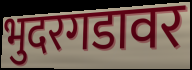
भुदरगडावर